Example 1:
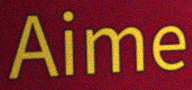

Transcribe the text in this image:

Aime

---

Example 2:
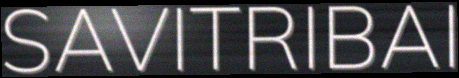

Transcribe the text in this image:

SAVITRIBAI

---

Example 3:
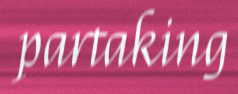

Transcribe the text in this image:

partaking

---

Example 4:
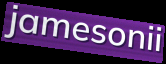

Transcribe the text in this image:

jamesonii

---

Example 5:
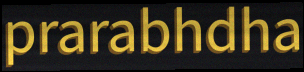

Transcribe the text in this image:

prarabhdha